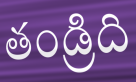
తండ్రిది